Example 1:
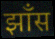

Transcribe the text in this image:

झाँस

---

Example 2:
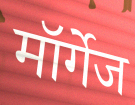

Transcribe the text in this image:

मॉर्गेज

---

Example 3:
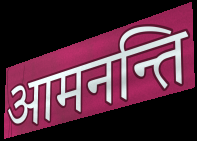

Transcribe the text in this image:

आमनन्ति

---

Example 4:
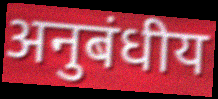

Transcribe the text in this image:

अनुबंधीय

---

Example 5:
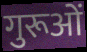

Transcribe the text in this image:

गुरूओं